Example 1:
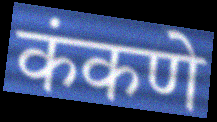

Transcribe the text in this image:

कंकणे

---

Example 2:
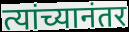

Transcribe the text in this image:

त्यांच्यानंतर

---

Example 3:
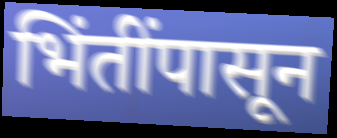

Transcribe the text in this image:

भिंतींपासून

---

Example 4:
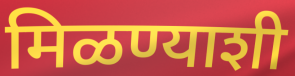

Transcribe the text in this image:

मिळण्याशी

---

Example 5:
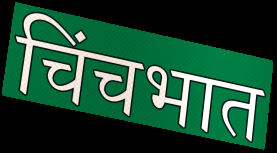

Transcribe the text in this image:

चिंचभात